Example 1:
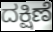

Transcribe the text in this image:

ದಕ್ಷಿಣೆ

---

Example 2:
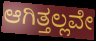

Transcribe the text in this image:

ಆಗಿತ್ತಲ್ಲವೇ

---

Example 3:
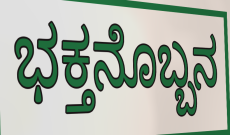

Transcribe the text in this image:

ಭಕ್ತನೊಬ್ಬನ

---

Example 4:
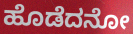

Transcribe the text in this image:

ಹೊಡೆದನೋ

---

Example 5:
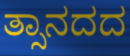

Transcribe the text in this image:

ತ್ಸಾನದದ